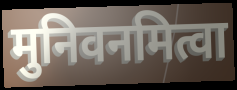
मुनिवनमित्वा